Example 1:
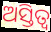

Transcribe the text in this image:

ଅସ୍ତିତ୍ଵ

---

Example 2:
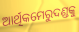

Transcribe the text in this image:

ଆର୍ଥିକମେରୁଦଣ୍ଡକୁ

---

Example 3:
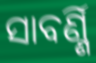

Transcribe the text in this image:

ସାବର୍ଣ୍ଣି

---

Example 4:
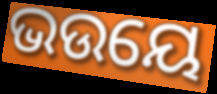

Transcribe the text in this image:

ଭଉୟେ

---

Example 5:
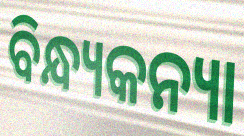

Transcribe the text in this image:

ବିନ୍ଧ୍ୟକନ୍ୟା